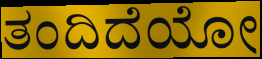
ತಂದಿದೆಯೋ